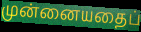
முன்னையதைப்